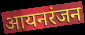
आयनरंजन